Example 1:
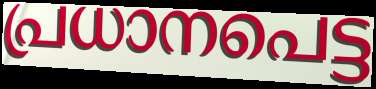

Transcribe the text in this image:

പ്രധാനപെട്ട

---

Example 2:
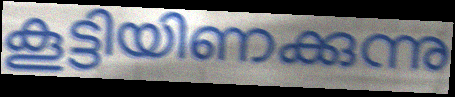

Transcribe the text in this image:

കൂട്ടിയിണക്കുന്നു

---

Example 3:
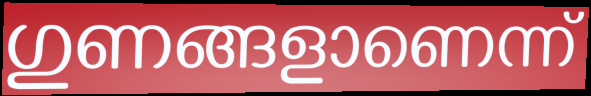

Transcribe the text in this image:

ഗുണങ്ങളാണെന്ന്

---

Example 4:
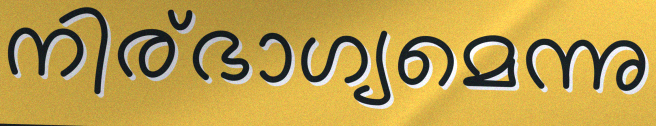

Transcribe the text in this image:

നിര്ഭാഗ്യമെന്നു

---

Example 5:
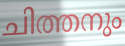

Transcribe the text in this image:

ചിത്തനും